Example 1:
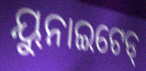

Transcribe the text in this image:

ୟୁନାଇଟେଡ୍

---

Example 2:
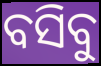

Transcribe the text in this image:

ବସିବୁ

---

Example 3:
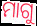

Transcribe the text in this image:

ମାଗୁ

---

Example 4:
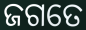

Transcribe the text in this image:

ଜଗତେ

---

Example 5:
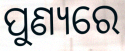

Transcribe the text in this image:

ପୁଣ୍ୟରେ